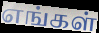
எங்கள்